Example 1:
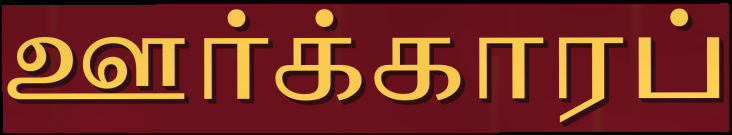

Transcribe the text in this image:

ஊர்க்காரப்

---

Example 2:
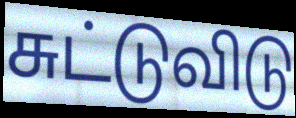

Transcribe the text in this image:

சுட்டுவிடு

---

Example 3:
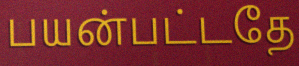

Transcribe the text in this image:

பயன்பட்டதே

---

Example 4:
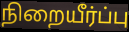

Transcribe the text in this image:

நிறையீர்ப்பு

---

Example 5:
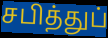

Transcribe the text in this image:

சபித்துப்